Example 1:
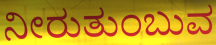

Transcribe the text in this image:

ನೀರುತುಂಬುವ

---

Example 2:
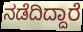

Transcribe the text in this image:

ನಡೆದಿದ್ದಾರೆ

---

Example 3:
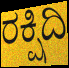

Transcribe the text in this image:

ರಕ್ಷಿದಿ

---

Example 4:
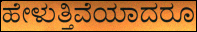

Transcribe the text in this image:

ಹೇಳುತ್ತಿವೆಯಾದರೂ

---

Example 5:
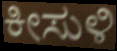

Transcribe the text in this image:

ಕೀಸುಳಿ